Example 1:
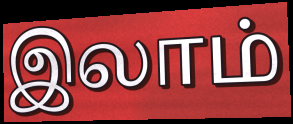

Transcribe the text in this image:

இலாம்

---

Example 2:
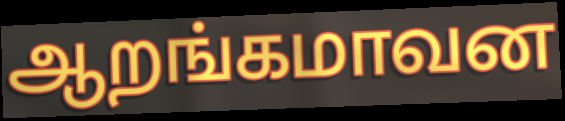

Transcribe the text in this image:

ஆறங்கமாவன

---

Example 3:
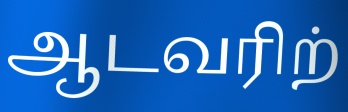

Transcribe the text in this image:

ஆடவரிற்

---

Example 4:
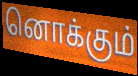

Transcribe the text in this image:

னொக்கும்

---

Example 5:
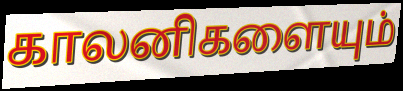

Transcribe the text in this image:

காலனிகளையும்